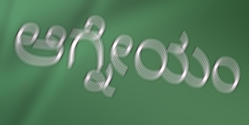
ಆಗ್ನೇಯಂ